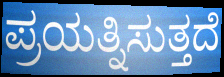
ಪ್ರಯತ್ನಿಸುತ್ತದೆ